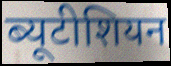
ब्यूटीशियन